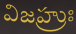
విజహ్రుః